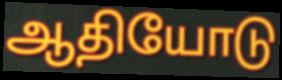
ஆதியோடு